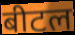
बीटल